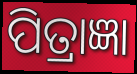
ପିତ୍ରାଜ୍ଞା